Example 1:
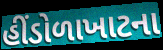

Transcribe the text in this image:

હીંડોળાખાટના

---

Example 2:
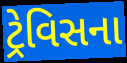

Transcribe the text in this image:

ટ્રેવિસના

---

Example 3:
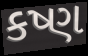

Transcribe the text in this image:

કષ્ણ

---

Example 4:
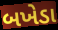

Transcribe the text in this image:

બખેડા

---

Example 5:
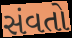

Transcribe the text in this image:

સંવતો